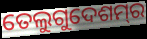
ତେଲୁଗୁଦେଶମ୍‌ର